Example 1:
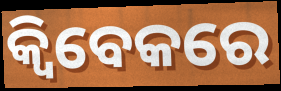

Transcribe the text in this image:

କ୍ୱିବେକରେ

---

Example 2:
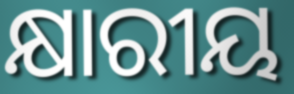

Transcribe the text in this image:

କ୍ଷାରୀୟ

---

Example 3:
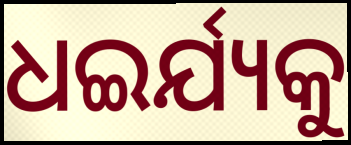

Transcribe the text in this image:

ଧଇର୍ଯ୍ୟକୁ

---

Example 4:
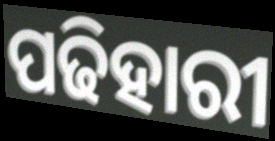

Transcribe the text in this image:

ପଢିହାରୀ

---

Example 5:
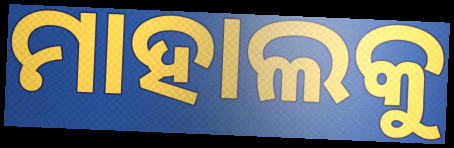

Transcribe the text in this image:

ମାହାଲକୁ